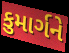
કુમાર્ગને